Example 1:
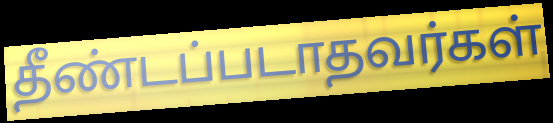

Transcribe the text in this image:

தீண்டப்படாதவர்கள்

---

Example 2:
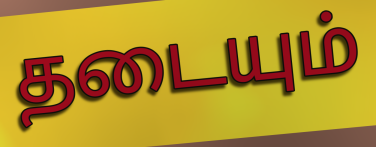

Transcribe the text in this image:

தடையும்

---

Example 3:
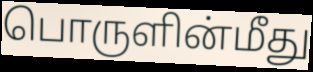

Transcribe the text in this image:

பொருளின்மீது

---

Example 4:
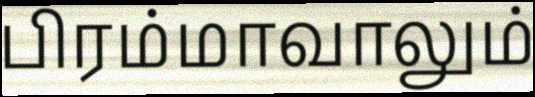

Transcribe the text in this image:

பிரம்மாவாலும்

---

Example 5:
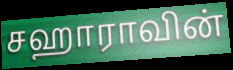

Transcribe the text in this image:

சஹாராவின்